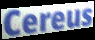
Cereus